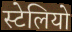
स्टेलियो